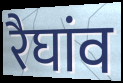
रैघांव